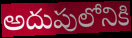
అదుపులోనికి